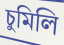
চুমিলি